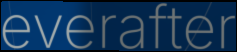
everafter